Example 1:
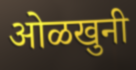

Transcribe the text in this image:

ओळखुनी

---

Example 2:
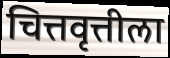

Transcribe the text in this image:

चित्तवृत्तीला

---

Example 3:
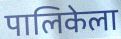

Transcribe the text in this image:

पालिकेला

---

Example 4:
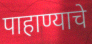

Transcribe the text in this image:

पाहाण्याचे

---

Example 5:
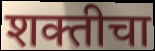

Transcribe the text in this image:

शक्‍तीचा